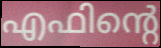
എഫിന്റെ